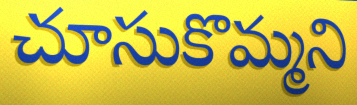
చూసుకొమ్మని